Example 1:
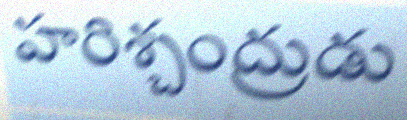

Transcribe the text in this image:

హరిశ్చంద్రుడు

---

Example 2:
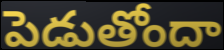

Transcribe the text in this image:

పెడుతోందా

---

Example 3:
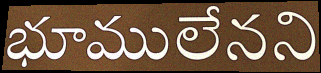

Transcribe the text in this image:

భూములేనని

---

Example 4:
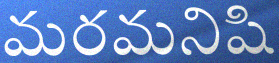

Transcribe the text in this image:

మరమనిషి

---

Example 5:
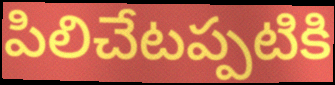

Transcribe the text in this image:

పిలిచేటప్పటికి